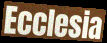
Ecclesia